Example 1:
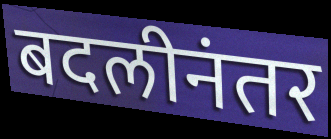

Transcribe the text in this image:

बदलीनंतर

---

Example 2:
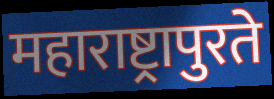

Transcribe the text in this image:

महाराष्ट्रापुरते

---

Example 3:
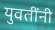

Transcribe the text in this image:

युवतींनी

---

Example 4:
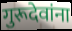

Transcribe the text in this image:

गुरूदेवांना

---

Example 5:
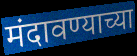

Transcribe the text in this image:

मंदावण्याच्या